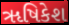
ૠષિકેશ